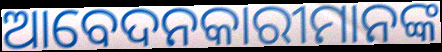
ଆବେଦନକାରୀମାନଙ୍କ